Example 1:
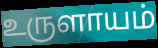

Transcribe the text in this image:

உருளாயம்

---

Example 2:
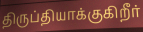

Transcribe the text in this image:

திருப்தியாக்குகிறீர்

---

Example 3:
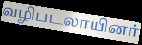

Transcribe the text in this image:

வழிபடலாயினர்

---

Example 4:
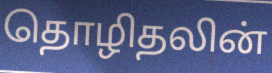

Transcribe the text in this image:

தொழிதலின்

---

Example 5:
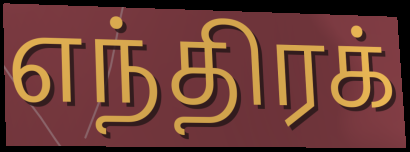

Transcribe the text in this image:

எந்திரக்